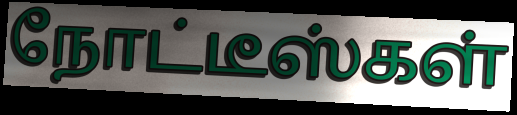
நோட்டீஸ்கள்